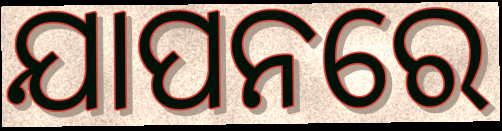
ଯାପନରେ